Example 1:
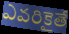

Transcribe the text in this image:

ఎవరికైతే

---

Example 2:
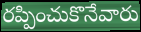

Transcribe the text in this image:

రప్పించుకొనేవారు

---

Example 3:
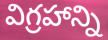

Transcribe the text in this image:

విగ్రహాన్ని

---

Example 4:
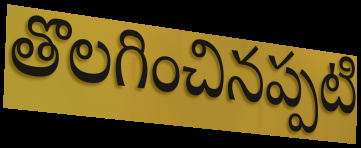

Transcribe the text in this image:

తొలగించినప్పటి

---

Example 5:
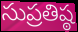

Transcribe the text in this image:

సుప్రతిష్ఠ